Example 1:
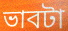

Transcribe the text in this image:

ভাবটা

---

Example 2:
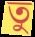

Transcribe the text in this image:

তু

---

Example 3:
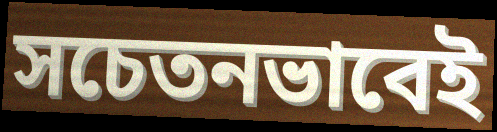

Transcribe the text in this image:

সচেতনভাবেই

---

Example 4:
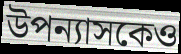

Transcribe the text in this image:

উপন্যাসকেও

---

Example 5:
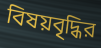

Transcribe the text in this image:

বিষয়বৃদ্ধির